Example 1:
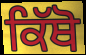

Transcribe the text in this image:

ਕਿੱਥੋ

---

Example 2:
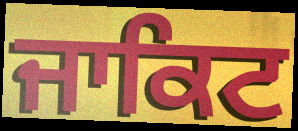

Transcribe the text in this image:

ਜਾਕਿਟ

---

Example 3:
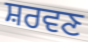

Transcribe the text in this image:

ਸ਼ਰਵਣ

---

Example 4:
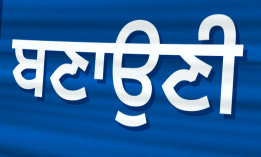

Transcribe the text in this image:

ਬਣਾਉਣੀ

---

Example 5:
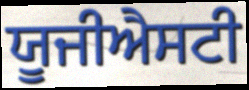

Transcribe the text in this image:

ਯੂਜੀਐਸਟੀ